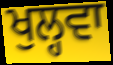
ਖੁਲ੍ਹਵਾ